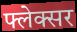
फ्लेक्सर